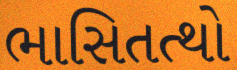
ભાસિતત્થો